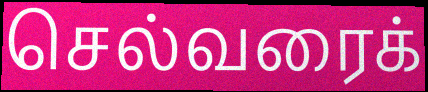
செல்வரைக்